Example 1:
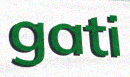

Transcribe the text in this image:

gati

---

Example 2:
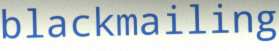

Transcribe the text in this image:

blackmailing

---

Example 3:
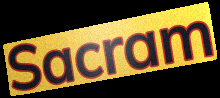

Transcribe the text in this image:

Sacram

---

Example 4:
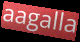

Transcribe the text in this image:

aagalla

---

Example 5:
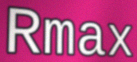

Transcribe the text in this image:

Rmax